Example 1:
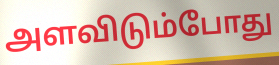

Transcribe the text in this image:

அளவிடும்போது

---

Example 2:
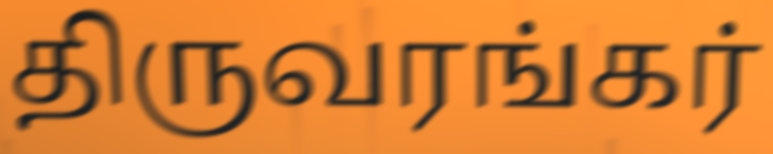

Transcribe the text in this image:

திருவரங்கர்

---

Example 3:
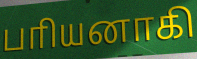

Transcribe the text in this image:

பரியனாகி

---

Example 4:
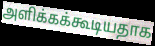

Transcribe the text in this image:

அளிக்கக்கூடியதாக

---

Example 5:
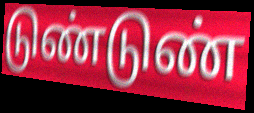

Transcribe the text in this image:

டுண்டுண்